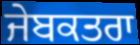
ਜੇਬਕਤਰਾ